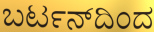
ಬರ್ಟನ್‌ದಿಂದ